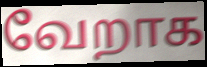
வேறாக